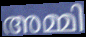
അമ്മി